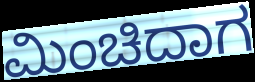
ಮಿಂಚಿದಾಗ